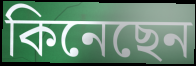
কিনেছেন